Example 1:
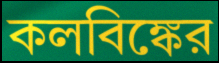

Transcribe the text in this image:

কলবিঙ্কের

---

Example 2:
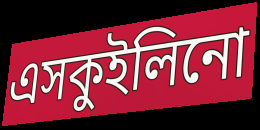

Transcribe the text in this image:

এসকুইলিনো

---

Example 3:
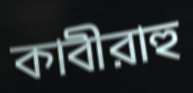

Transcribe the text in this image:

কাবীরাহু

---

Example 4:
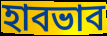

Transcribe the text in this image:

হাবভাব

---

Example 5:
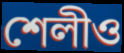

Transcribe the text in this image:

শেলীও